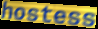
hostess